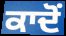
ਕਾਦੋਂ